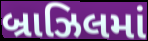
બ્રાઝિલમાં